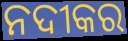
ନଦୀକର